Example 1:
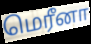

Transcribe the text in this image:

மெரீனா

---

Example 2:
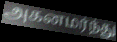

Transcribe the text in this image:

அகனமர்ந்து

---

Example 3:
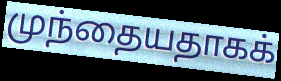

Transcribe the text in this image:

முந்தையதாகக்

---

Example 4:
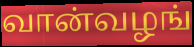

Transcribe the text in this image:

வான்வழங்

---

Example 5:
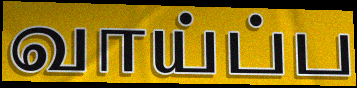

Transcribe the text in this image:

வாய்ப்ப